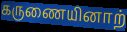
கருணையினாற்